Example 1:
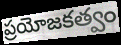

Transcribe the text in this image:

ప్రయోజకత్వం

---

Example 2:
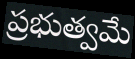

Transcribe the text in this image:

ప్రభుత్వమే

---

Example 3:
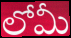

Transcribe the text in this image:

లోమీ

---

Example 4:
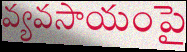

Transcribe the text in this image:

వ్యవసాయంపై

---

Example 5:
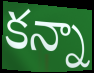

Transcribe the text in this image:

కన్నా